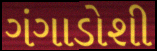
ગંગાડોશી